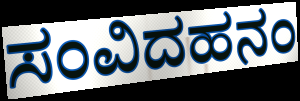
ಸಂವಿದಹನಂ